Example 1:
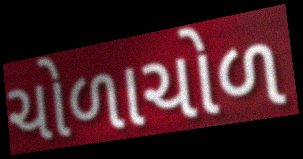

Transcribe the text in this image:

ચોળાચોળ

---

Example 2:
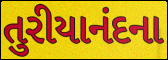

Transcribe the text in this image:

તુરીયાનંદના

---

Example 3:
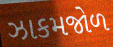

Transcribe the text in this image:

ઝાકમજોળ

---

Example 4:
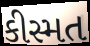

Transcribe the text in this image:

કીસ્મત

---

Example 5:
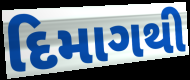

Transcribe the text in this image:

દિમાગથી